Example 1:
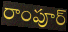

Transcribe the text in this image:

రాంపూర్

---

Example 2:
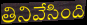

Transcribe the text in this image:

తినివేసింది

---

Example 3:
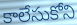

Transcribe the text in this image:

కాలేసుకోని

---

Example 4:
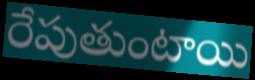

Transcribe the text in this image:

రేపుతుంటాయి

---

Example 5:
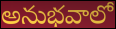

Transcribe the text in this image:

అనుభవాలో